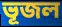
ভূজল